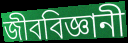
জীববিজ্ঞানী